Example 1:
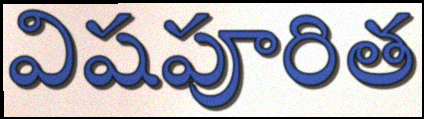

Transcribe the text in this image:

విషపూరిత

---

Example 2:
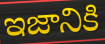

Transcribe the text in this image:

ఇజానికి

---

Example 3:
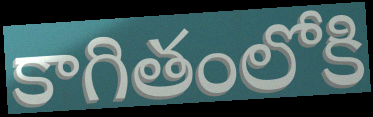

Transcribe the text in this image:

కాగితంలోకి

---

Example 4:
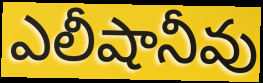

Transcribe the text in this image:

ఎలీషానీవు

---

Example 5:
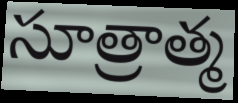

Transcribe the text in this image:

సూత్రాత్మ